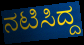
ನಟಿಸಿದ್ದ